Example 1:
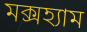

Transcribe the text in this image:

মক্সহ্যাম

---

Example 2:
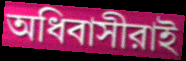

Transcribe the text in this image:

অধিবাসীরাই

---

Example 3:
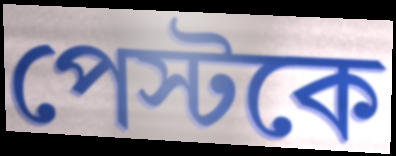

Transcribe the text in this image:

পেস্টকে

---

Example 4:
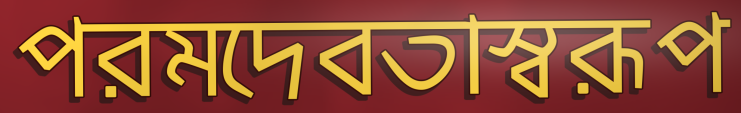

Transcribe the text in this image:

পরমদেবতাস্বরূপ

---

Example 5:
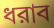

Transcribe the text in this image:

ধরাব